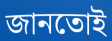
জানতোই